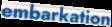
embarkation